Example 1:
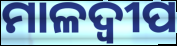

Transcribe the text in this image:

ମାଳଦ୍ଵୀପ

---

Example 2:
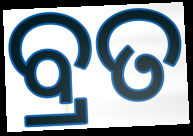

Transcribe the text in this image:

ବ୍ରତ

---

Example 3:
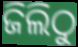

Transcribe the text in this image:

ଜିଲିଠୁ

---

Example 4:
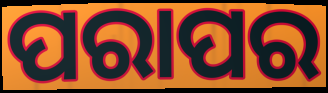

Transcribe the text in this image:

ପରାପର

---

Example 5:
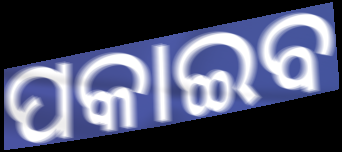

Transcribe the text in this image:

ପକାଇବ